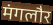
मंगलौर